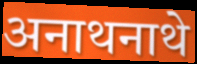
अनाथनाथे